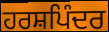
ਹਰਸ਼ਪਿੰਦਰ